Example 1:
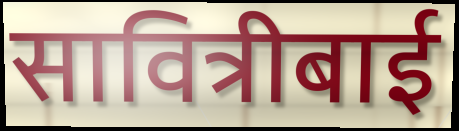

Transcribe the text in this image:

सावित्रीबाई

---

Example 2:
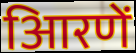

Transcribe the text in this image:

आिरणें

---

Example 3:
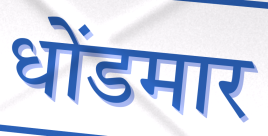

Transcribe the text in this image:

धोंडमार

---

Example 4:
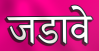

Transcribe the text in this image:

जडावे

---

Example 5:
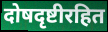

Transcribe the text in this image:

दोषदृष्टीरहित